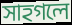
সাহগলে